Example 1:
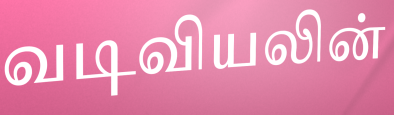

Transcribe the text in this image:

வடிவியலின்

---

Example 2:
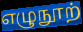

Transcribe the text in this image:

எழுநூற்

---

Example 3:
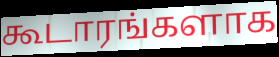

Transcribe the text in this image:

கூடாரங்களாக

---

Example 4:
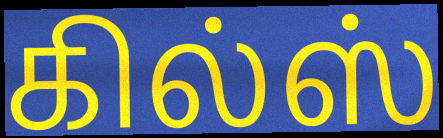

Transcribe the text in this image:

கில்ஸ்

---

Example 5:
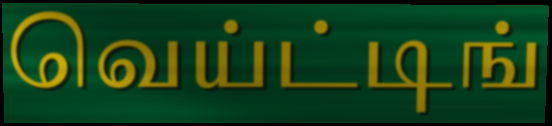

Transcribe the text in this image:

வெய்ட்டிங்